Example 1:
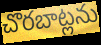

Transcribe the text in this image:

చొరబాట్లను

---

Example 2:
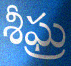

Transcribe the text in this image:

శీఘ్ర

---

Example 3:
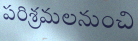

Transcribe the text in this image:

పరిశ్రమలనుంచి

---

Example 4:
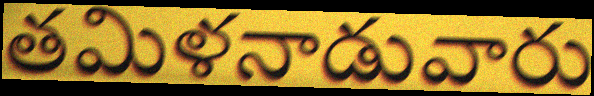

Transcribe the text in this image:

తమిళనాడువారు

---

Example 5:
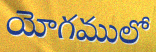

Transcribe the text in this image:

యోగములో